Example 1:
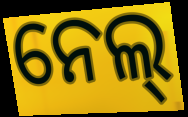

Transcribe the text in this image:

ନେଲ୍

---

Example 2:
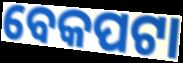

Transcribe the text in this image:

ବେକପଟା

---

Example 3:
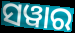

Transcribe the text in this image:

ସୱାର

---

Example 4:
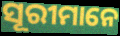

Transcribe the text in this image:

ସୂରୀମାନେ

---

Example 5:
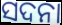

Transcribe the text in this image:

ସଦନା